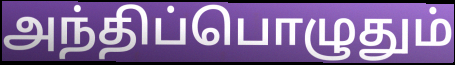
அந்திப்பொழுதும்